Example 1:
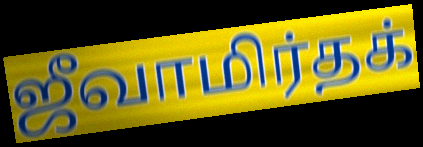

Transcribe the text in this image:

ஜீவாமிர்தக்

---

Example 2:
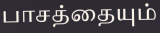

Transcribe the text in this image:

பாசத்தையும்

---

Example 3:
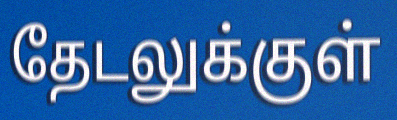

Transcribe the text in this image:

தேடலுக்குள்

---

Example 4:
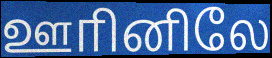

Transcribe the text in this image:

ஊரினிலே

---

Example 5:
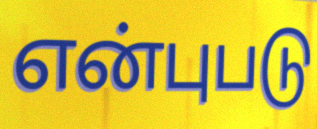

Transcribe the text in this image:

என்புபடு